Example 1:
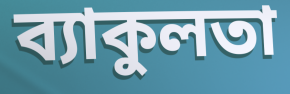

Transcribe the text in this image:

ব্যাকুলতা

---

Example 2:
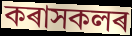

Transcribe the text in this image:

কৰাসকলৰ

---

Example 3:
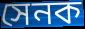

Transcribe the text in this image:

সেনক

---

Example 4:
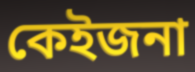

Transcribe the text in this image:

কেইজনা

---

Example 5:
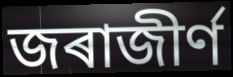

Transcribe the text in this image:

জৰাজীৰ্ণ